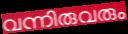
വന്നിരുവരും